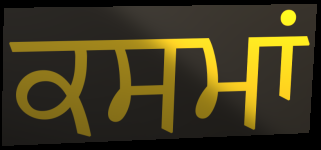
ਕਸਮਾਂ